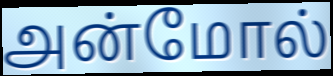
அன்மோல்